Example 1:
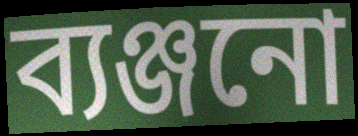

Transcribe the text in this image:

ব্যঞ্জনো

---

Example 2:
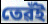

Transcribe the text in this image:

তেৱঁই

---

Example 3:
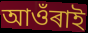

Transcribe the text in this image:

আওঁৰাই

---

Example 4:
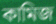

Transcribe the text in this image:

কামিজ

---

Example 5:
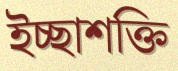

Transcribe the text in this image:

ইচ্ছাশক্তি